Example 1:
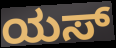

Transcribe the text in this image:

ಯಸ್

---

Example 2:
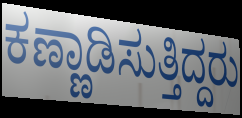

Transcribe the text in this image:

ಕಣ್ಣಾಡಿಸುತ್ತಿದ್ದರು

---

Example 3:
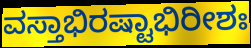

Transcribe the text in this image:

ವಸ್ತಾಭಿರಷ್ಟಾಭಿರೀಶಃ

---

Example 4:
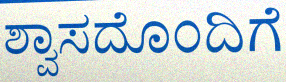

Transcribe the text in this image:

ಶ್ವಾಸದೊಂದಿಗೆ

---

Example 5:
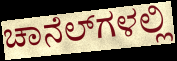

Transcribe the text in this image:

ಚಾನೆಲ್‍ಗಳಲ್ಲಿ